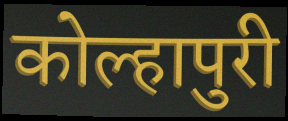
कोल्हापुरी